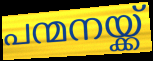
പന്മനയ്ക്ക്